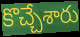
కొచ్చేశారు